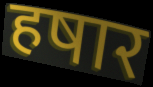
हषार